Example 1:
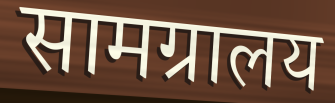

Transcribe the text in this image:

सामग्रालय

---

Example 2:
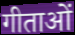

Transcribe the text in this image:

गीताओं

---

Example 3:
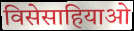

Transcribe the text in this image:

विसेसाहियाओ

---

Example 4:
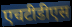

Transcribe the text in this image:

एचटीडीएस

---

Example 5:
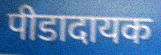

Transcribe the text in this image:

पीडादायक